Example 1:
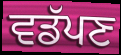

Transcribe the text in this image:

ਵਡੱਪਣ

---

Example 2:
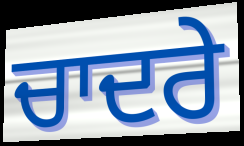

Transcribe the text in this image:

ਚਾਦਰੇ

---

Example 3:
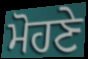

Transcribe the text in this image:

ਮੋਹਣੇ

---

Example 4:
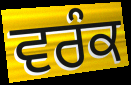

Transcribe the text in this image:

ਵਰੰਕ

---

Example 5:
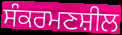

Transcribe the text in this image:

ਸੰਕਰਮਣਸ਼ੀਲ